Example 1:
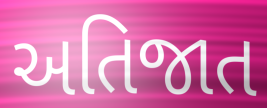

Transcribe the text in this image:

અતિજાત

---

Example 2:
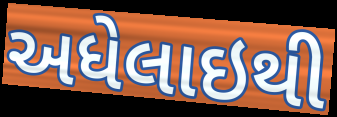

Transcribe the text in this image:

અધેલાઇથી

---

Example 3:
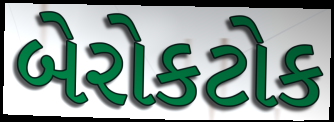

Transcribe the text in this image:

બેરોકટોક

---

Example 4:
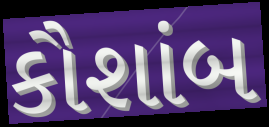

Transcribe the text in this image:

કૌશાંબ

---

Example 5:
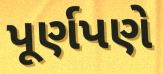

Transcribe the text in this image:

પૂર્ણપણે